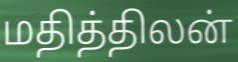
மதித்திலன்